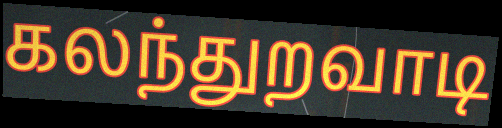
கலந்துறவாடி